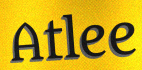
Atlee